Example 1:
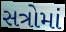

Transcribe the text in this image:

સત્રોમાં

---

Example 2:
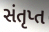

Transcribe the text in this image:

સંતૃપ્ત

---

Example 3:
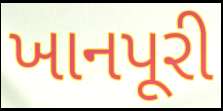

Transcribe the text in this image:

ખાનપૂરી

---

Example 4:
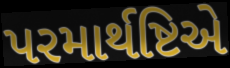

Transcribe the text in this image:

પરમાર્થષ્ટિએ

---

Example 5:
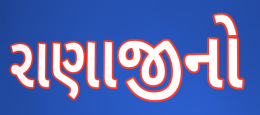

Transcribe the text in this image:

રાણાજીનો